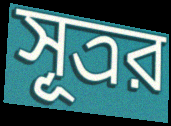
সূত্রর